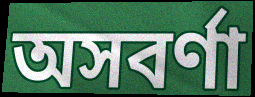
অসবর্ণা